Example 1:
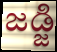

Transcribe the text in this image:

జడ్జి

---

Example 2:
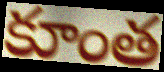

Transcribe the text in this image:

కూంత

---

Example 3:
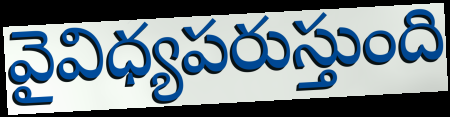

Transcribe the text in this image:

వైవిధ్యపరుస్తుంది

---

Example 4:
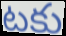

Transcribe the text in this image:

టకు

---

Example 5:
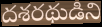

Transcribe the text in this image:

దశరథుడిని